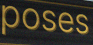
poses